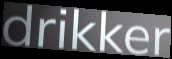
drikker